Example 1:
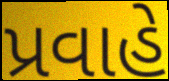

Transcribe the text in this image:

પ્રવાહે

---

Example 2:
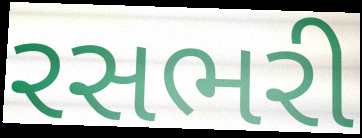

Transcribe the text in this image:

રસભરી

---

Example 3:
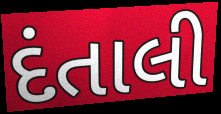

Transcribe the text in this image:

દંતાલી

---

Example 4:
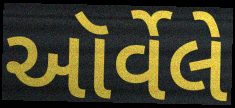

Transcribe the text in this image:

ઑર્વેલે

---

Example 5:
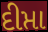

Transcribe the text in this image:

દીપ્તા